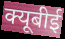
क्यूबीई